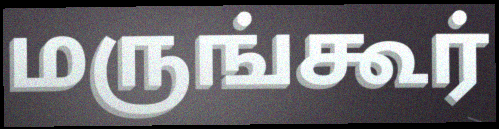
மருங்கூர்